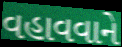
વહાવવાને